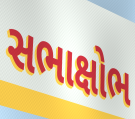
સભાક્ષોભ